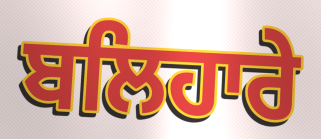
ਬਲਿਹਾਰੇ